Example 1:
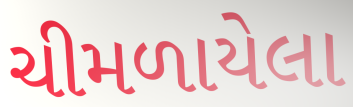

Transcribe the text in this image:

ચીમળાયેલા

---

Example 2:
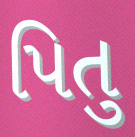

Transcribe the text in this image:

પિતુ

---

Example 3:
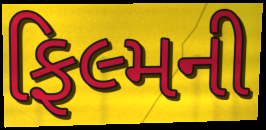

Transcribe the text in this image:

ફિલ્મની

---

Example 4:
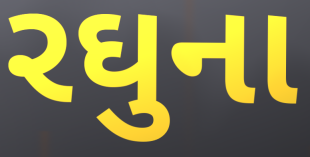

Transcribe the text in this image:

રઘુના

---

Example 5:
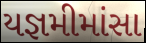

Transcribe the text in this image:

યજ્ઞમીમાંસા